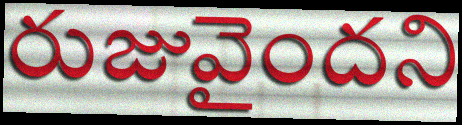
రుజువైందని